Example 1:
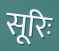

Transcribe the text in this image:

सूरिः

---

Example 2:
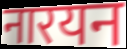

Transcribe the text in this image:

नारयन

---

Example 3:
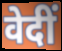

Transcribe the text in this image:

वेदीं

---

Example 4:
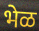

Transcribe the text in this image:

भेळ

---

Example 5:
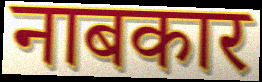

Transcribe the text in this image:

नाबकार